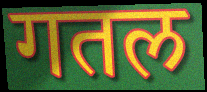
गतल